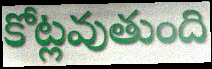
కోట్లవుతుంది